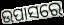
ଉପାସରେ